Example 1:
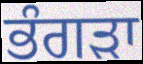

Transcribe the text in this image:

ਭੰਗੜਾ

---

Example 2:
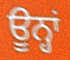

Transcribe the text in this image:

ਊਨ੍ਹਾਂ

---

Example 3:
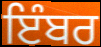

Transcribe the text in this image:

ਇੰਬਰ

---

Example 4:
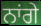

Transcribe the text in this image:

ਨਾਂਗੇ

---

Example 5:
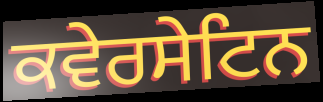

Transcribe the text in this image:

ਕਵੇਰਸੇਟਿਨ